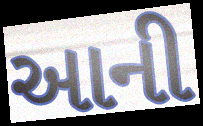
આની